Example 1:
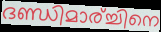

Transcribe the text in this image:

ദണ്ഡിമാര്ച്ചിനെ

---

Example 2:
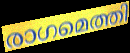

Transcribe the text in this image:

രാഗമെത്തി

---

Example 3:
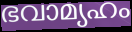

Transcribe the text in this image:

ഭവാമ്യഹം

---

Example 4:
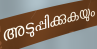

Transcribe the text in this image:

അടുപ്പിക്കുകയും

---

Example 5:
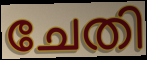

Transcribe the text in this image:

ചേതി